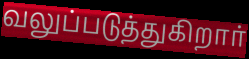
வலுப்படுத்துகிறார்